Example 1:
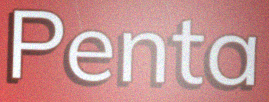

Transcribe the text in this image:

Penta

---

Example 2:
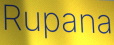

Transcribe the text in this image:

Rupana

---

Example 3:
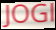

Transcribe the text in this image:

JOGI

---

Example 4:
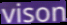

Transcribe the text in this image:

vison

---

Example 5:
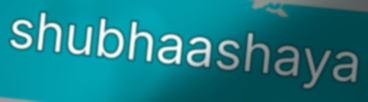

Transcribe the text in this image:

shubhaashaya